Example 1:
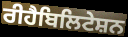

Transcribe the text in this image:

ਰੀਹੈਬਿਲਿਟੇਸ਼ਨ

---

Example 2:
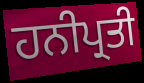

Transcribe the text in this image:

ਹਨੀਪ੍ਰਤੀ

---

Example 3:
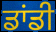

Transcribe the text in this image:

ਡਾਂਡੀ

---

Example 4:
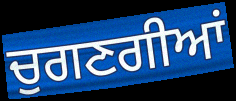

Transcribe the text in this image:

ਚੁਗਣਗੀਆਂ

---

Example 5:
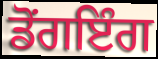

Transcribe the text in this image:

ਡੋਂਗਇੰਗ